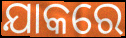
ଯାକରେ